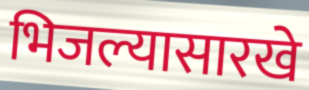
भिजल्यासारखे